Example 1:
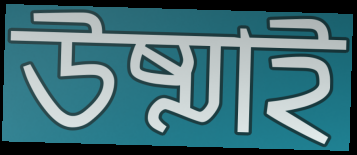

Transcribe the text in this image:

উষ্মাই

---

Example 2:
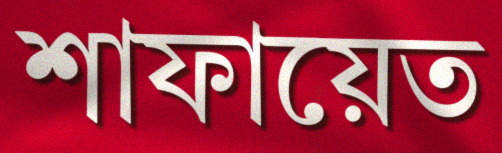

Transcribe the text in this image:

শাফায়েত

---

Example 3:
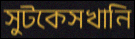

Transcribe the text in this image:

সুটকেসখানি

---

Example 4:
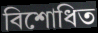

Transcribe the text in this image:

বিশোধিত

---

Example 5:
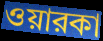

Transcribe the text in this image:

ওয়ারকা